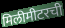
मिलीमीटरची